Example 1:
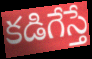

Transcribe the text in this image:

కడిగేస్తే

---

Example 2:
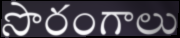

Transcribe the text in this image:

సొరంగాలు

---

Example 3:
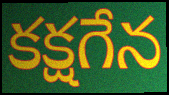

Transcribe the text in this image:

కక్షగేన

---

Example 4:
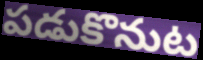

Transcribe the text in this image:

పడుకొనుట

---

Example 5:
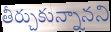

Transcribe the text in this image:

తీర్చుకున్నానని